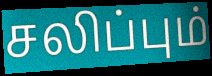
சலிப்பும்